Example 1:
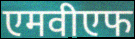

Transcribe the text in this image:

एमवीएफ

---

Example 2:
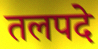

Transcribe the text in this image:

तलपदे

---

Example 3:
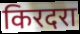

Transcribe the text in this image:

किरदरा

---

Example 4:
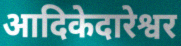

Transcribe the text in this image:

आदिकेदारेश्वर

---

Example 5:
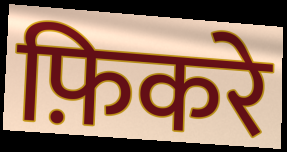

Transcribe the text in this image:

फ़िकरे